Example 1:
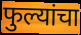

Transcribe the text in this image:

फुल्यांचा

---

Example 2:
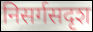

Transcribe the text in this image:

निसर्गसदृश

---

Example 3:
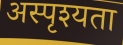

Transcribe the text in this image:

अस्पृश्यता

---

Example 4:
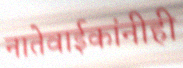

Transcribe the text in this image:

नातेवाईकांनीही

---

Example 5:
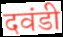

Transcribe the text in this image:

दवंडी